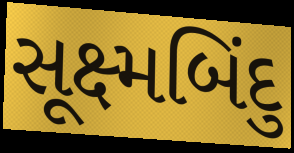
સૂક્ષ્મબિંદુ